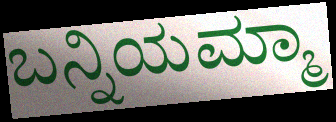
ಬನ್ನಿಯಮ್ಮಾ